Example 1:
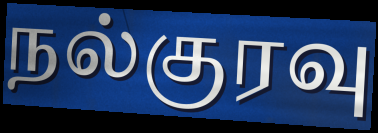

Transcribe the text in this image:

நல்குரவு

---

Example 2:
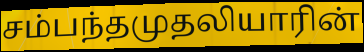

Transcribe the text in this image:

சம்பந்தமுதலியாரின்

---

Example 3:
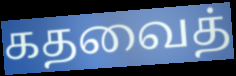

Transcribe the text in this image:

கதவைத்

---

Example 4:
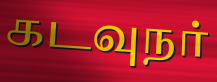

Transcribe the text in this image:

கடவுநர்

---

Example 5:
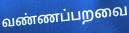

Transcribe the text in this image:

வண்ணப்பறவை